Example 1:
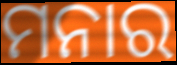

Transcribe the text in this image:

ମନାର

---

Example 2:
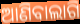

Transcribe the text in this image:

ଆଣିବାଲାଗି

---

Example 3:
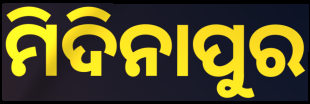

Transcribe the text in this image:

ମିଦିନାପୁର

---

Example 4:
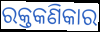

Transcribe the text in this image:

ରକ୍ତକଣିକାର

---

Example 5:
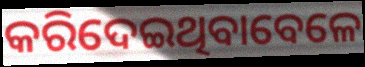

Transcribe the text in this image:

କରିଦେଇଥିବାବେଳେ